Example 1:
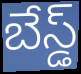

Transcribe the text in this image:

బేస్డ్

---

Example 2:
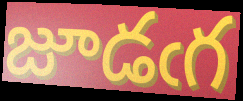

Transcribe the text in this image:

జూడఁగ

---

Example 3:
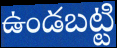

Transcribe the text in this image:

ఉండబట్టి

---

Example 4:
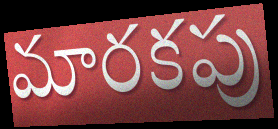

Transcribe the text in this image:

మారకపు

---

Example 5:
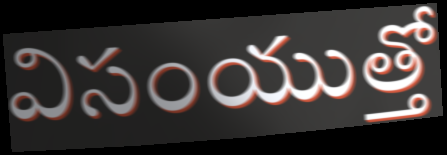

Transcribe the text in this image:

విసంయుత్తో